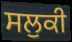
ਸਲੁਕੀ